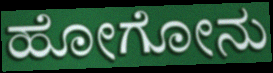
ಹೋಗೋನು